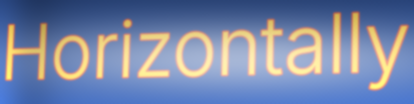
Horizontally